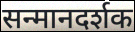
सन्मानदर्शक